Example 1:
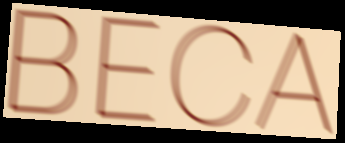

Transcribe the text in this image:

BECA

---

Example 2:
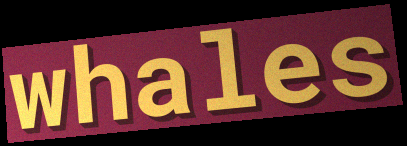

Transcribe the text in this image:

whales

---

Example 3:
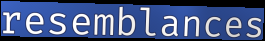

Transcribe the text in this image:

resemblances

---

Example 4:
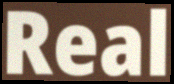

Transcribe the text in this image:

Real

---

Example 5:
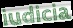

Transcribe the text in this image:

iudicia